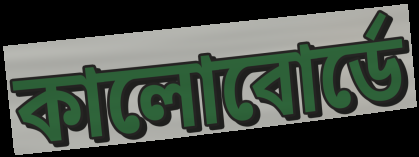
কালোবোর্ডে